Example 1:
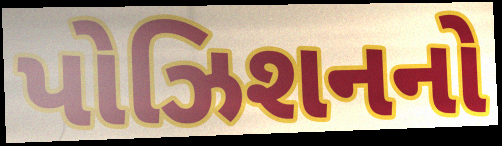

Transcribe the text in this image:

પોઝિશનનો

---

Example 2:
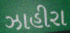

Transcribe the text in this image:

ઝાહીરા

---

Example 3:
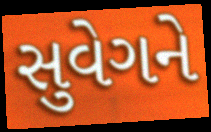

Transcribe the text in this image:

સુવેગને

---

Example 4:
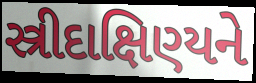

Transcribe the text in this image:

સ્ત્રીદાક્ષિણ્યને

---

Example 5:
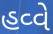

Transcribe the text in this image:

હવ્વે